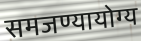
समजण्यायोग्य